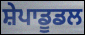
ਸ਼ੇਪਾਡੂਡਲ